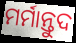
ମର୍ମାନ୍ତୁଦ